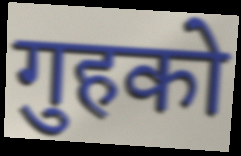
गुहको